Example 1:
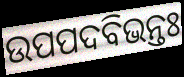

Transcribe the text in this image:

ଉପପଦବିଭନ୍ତଃ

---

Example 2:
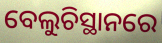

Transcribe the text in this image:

ବେଲୁଚିସ୍ଥାନରେ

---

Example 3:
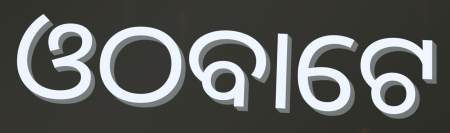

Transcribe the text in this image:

ଓଠବାଟେ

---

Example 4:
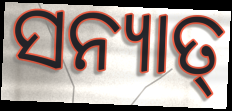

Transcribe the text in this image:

ସନ୍ୟାତ୍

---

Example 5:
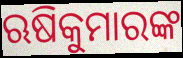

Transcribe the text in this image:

ଋଷିକୁମାରଙ୍କ